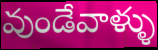
వుండేవాళ్ళు